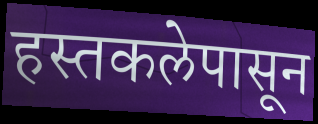
हस्तकलेपासून